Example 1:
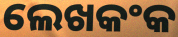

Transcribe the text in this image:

ଲେଖକଂକ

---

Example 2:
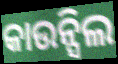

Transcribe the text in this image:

କାଉନ୍ସିଲ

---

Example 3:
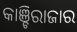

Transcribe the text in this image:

କାଞ୍ଚିରାଜାର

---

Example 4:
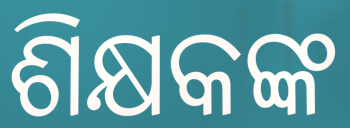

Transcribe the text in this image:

ଶିକ୍ଷକଙ୍କ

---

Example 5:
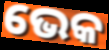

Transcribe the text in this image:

ଭେକ